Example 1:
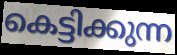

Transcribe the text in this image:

കെട്ടിക്കുന്ന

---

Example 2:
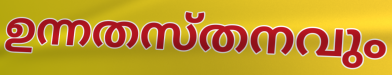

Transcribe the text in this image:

ഉന്നതസ്തനവും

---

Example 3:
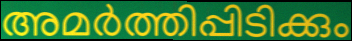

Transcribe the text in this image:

അമർത്തിപ്പിടിക്കും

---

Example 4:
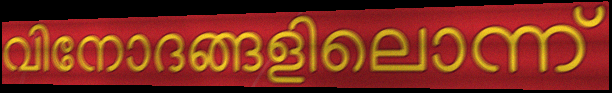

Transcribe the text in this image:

വിനോദങ്ങളിലൊന്ന്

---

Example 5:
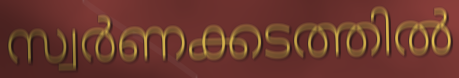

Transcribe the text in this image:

സ്വർണക്കടത്തിൽ